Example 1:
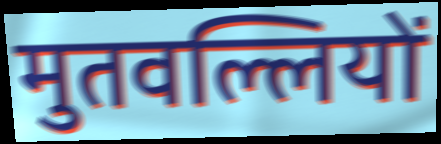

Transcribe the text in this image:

मुतवल्लियों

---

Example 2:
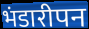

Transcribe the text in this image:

भंडारीपन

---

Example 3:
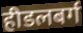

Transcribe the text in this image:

हीडलबर्ग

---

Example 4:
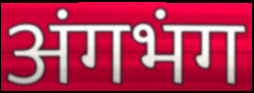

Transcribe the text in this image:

अंगभंग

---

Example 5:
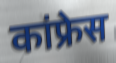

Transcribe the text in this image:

कांफ्रेस